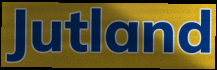
Jutland